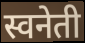
स्वनेती